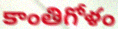
కాంతిగోళం